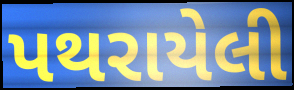
પથરાયેલી